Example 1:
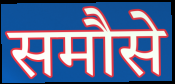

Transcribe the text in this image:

समौसे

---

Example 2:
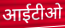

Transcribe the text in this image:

आईटीओ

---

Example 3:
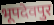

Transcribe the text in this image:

भूपदेवपुर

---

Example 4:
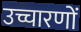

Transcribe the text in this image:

उच्चारणों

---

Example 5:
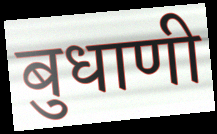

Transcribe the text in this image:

बुधाणी